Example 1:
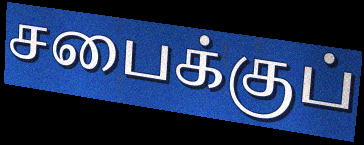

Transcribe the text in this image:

சபைக்குப்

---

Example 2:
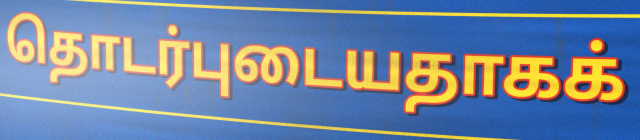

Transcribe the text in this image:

தொடர்புடையதாகக்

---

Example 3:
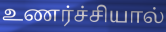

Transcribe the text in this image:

உணர்ச்சியால்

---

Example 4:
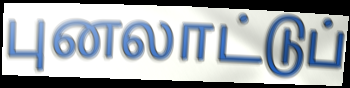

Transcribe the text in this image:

புனலாட்டுப்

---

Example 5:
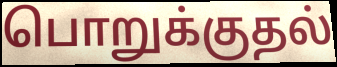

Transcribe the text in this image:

பொறுக்குதல்